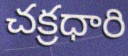
చక్రధారి